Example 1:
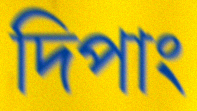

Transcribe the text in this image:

দিপাং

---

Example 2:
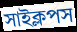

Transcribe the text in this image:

সাইক্লপস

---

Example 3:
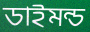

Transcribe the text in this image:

ডাইমন্ড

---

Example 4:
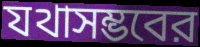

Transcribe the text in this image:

যথাসম্ভবের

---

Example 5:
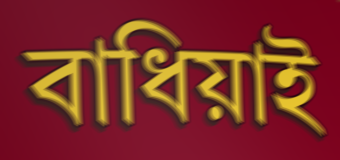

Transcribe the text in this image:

বাধিয়াই